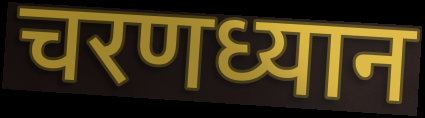
चरणध्यान